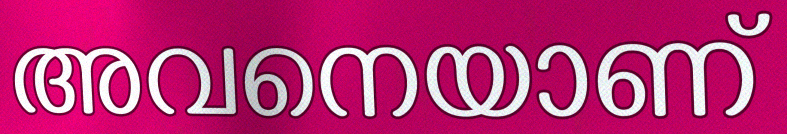
അവനെയാണ്